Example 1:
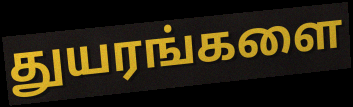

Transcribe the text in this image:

துயரங்களை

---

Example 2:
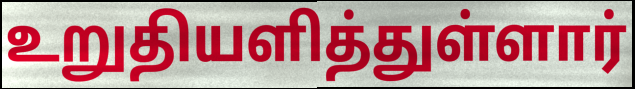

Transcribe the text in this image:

உறுதியளித்துள்ளார்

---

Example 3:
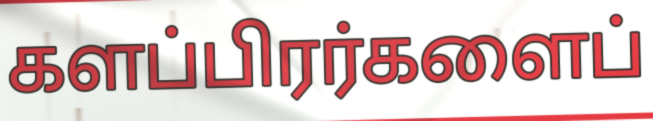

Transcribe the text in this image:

களப்பிரர்களைப்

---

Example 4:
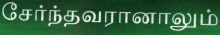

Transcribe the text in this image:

சேர்ந்தவரானாலும்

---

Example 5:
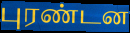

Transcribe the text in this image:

புரண்டன